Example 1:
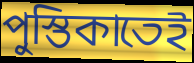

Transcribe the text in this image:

পুস্তিকাতেই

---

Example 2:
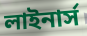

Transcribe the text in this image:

লাইনার্স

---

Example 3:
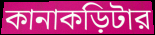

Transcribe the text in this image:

কানাকড়িটার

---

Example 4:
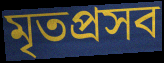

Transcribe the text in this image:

মৃতপ্রসব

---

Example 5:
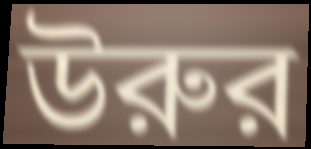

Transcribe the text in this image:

উরুর